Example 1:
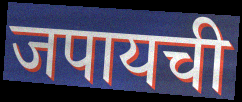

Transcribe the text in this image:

जपायची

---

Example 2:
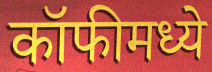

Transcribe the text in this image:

कॉफीमध्ये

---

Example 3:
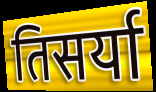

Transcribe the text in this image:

तिसर्या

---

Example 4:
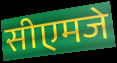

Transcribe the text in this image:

सीएमजे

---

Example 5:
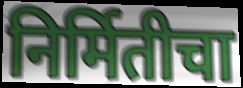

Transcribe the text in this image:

निर्मितीचा